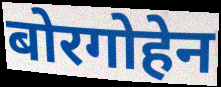
बोरगोहेन